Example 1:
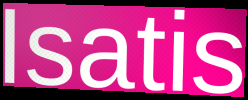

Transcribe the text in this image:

Isatis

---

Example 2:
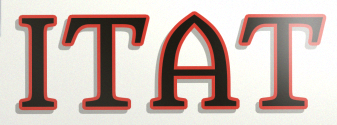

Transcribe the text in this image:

ITAT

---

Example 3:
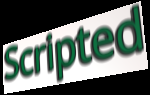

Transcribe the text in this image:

Scripted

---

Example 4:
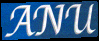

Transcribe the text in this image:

ANU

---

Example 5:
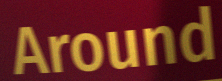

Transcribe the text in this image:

Around